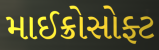
માઈક્રોસોફ્ટ